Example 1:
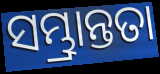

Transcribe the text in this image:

ସମ୍ଭ୍ରାନ୍ତତା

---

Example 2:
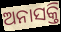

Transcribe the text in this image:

ଅନାସକ୍ତି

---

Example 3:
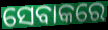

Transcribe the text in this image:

ସେବାକରେ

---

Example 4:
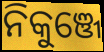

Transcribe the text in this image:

ନିକୁଞ୍ଜେ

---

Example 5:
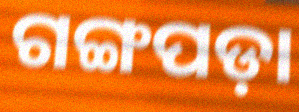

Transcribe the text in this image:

ଗଙ୍ଗପଡ଼ା